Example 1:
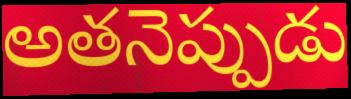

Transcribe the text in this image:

అతనెప్పుడు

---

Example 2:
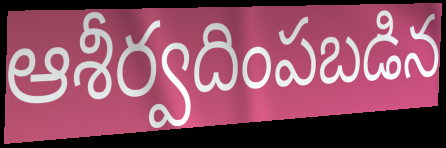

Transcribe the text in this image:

ఆశీర్వదింపబడిన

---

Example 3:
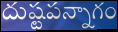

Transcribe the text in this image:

దుష్టపన్నాగం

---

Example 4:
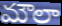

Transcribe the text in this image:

మౌలా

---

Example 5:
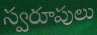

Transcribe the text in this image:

స్వరూపులు